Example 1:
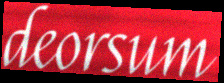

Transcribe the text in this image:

deorsum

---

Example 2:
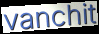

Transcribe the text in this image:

vanchit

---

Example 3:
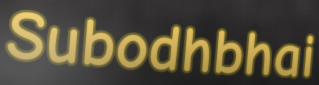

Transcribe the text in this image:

Subodhbhai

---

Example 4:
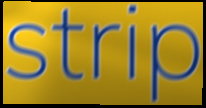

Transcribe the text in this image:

strip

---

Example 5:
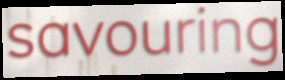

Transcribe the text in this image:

savouring